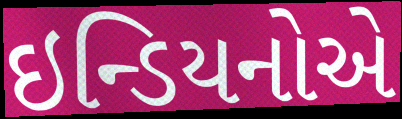
ઇન્ડિયનોએ